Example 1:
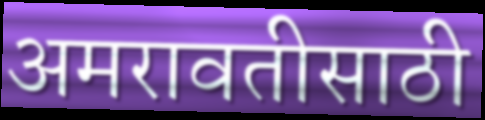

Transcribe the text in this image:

अमरावतीसाठी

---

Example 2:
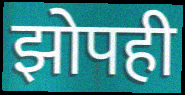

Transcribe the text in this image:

झोपही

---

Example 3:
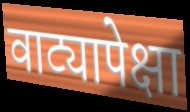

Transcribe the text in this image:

वाट्यापेक्षा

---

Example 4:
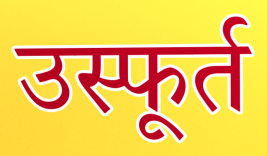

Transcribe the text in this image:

उस्फूर्त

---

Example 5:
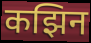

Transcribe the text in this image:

कझिन